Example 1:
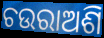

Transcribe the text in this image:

ଚଉରାଅଶି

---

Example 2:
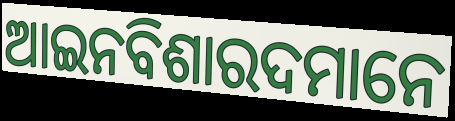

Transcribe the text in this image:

ଆଇନବିଶାରଦମାନେ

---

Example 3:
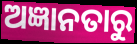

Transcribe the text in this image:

ଅଜ୍ଞାନତାରୁ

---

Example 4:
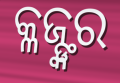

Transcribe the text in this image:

କ୍ଳଜ୍ଙ୍କର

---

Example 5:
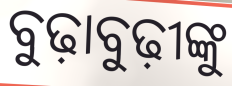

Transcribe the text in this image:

ବୁଢ଼ାବୁଢ଼ୀଙ୍କୁ